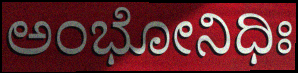
ಅಂಭೋನಿಧಿಃ